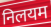
निलयम